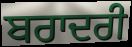
ਬਰਾਦਰੀ